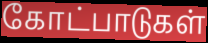
கோட்பாடுகள்